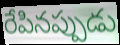
రేపినప్పుడు